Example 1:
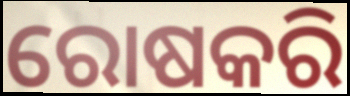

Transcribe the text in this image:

ରୋଷକରି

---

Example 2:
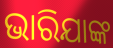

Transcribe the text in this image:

ଭାରିଯାଙ୍କ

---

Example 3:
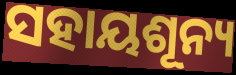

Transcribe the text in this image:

ସହାୟଶୂନ୍ୟ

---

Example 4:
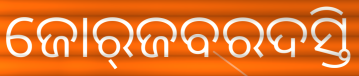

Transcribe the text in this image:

ଜୋର୍‍ଜବରଦସ୍ତି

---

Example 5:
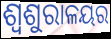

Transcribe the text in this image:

ଶ୍ୱଶୁରାଳୟର